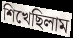
শিখেছিলাম